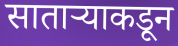
साताऱ्याकडून